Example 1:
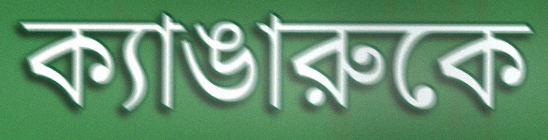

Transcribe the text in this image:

ক্যাঙারুকে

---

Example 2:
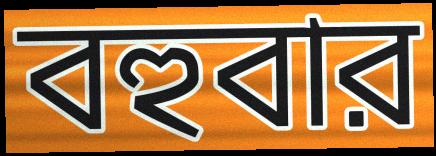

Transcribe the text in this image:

বহুবার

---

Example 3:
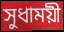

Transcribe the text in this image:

সুধাময়ী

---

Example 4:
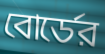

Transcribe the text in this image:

বোর্ডের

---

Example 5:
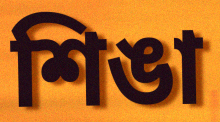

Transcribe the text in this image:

শিঙা